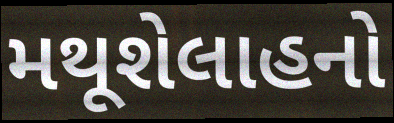
મથૂશેલાહનો